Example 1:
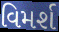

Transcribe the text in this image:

વિમર્શ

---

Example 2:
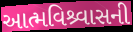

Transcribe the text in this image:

આત્મવિશ્ર્વાસની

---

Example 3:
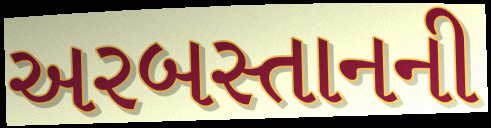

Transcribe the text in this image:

અરબસ્તાનની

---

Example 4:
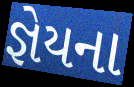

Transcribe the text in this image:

જ્ઞેયના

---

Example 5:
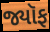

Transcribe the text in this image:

જ્યૉફ